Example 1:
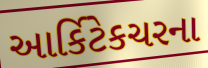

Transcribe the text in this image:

આર્કિટેકચરના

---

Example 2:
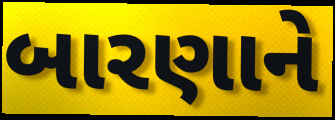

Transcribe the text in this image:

બારણાને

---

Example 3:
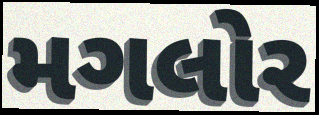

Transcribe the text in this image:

મગલોર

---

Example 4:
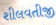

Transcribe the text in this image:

શીલવતીજી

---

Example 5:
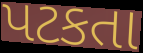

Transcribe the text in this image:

પટકતા